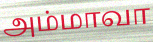
அம்மாவா